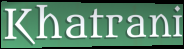
Khatrani